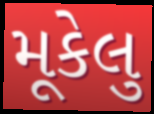
મૂકેલુ